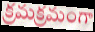
క్రమక్రమంగా